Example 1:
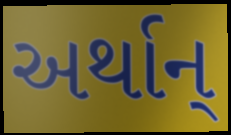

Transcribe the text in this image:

અર્થાન્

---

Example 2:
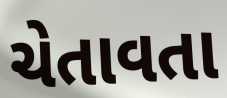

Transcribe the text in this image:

ચેતાવતા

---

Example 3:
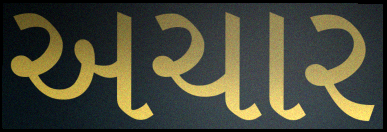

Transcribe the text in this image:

અચાર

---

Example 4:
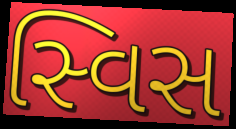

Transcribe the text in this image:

સ્વિસ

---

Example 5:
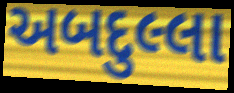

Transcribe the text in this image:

અબદુલ્લા